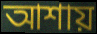
আশায়